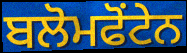
ਬਲੋਮਫੋਂਟੇਨ